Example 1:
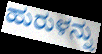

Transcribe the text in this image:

ಹುರುಳನ್ನು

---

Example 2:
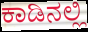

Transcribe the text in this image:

ಕಾಡಿನಲ್ಲಿ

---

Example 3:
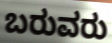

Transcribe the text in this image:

ಬರುವರು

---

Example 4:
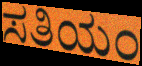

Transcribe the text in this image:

ಸತಿಯಂ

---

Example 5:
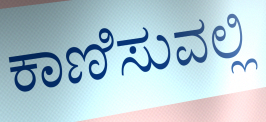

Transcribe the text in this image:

ಕಾಣಿಸುವಲ್ಲಿ